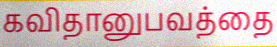
கவிதானுபவத்தை